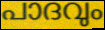
പാദവും